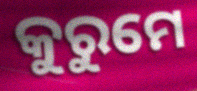
କୁରୁମେ